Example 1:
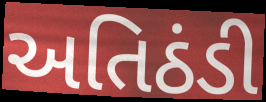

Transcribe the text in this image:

અતિઠંડી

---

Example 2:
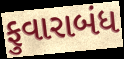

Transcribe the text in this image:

ફુવારાબંધ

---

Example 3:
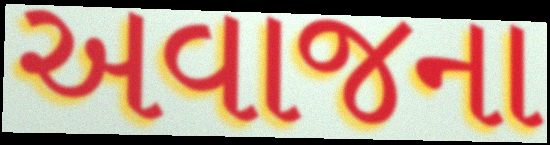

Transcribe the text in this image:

અવાજના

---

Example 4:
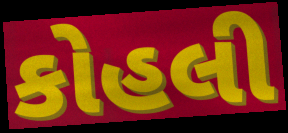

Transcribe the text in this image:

કોહલી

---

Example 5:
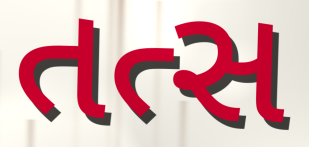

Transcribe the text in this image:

તત્સ